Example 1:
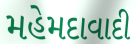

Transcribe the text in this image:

મહેમદાવાદી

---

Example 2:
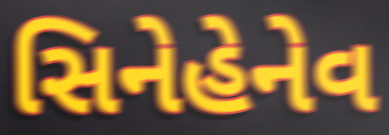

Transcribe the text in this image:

સિનેહેનેવ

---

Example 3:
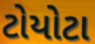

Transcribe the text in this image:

ટોયોટા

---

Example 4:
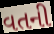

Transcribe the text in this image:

વતની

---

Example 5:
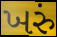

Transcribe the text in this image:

ખરું